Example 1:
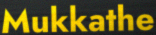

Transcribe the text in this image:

Mukkathe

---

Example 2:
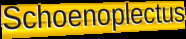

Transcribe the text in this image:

Schoenoplectus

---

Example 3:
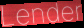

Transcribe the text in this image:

Lender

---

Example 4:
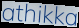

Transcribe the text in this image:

athikka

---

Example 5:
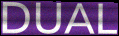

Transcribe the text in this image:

DUAL